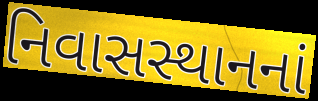
નિવાસસ્થાનનાં